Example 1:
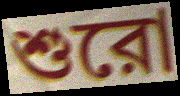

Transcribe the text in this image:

শুরো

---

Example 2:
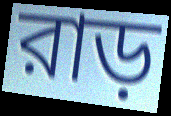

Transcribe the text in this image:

রাড়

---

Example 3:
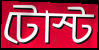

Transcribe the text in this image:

টোস্ট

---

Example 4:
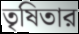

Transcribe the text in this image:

তৃষিতার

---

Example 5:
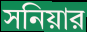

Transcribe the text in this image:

সনিয়ার